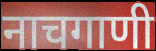
नाचगाणी